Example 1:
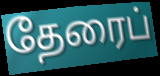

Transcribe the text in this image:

தேரைப்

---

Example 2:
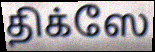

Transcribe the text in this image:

திக்ஸே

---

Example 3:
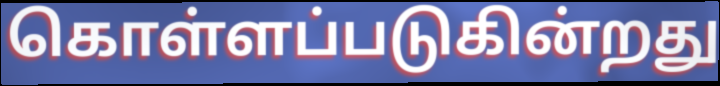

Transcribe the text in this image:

கொள்ளப்படுகின்றது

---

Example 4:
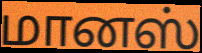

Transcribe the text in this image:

மானஸ்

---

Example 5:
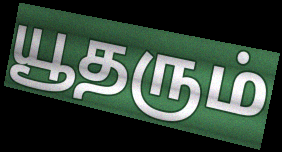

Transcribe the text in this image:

யூதரும்